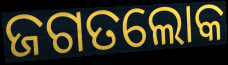
ଜଗତଲୋକ